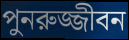
পুনরুজ্জীবন